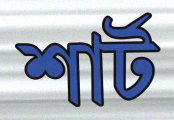
শার্ট